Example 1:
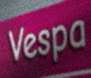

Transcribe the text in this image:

Vespa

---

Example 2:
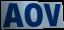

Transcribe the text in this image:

AOV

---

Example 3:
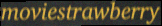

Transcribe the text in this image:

moviestrawberry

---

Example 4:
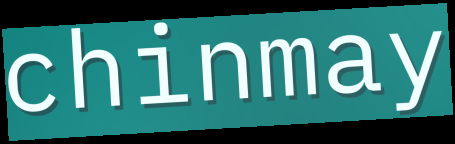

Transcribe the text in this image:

chinmay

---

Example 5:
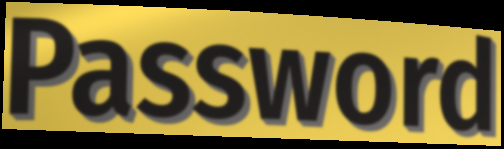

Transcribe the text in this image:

Password